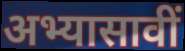
अभ्यासावीं